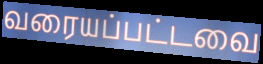
வரையப்பட்டவை